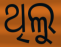
ଥିଲୁ